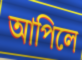
আপিলে